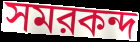
সমরকন্দ